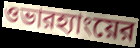
ওভারহ্যাংয়ের